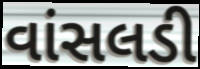
વાંસલડી